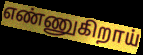
எண்ணுகிறாய்